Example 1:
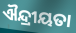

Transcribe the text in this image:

ଐନ୍ଦ୍ରୀୟତା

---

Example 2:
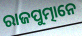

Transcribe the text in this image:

ରାଜପୁତ୍ମାନେ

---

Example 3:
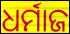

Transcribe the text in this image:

ଧର୍ମାଜ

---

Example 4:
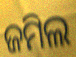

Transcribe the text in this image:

ଜମିଲ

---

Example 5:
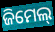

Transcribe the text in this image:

ଜିମେଲ୍